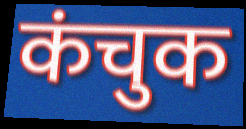
कंचुक